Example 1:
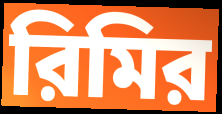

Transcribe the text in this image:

রিমির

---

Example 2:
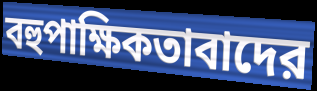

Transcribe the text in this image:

বহুপাক্ষিকতাবাদের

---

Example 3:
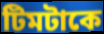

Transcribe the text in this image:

টিমটাকে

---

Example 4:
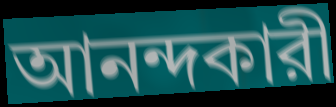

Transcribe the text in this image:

আনন্দকারী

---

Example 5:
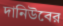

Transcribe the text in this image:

দানিউবের